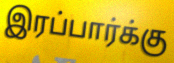
இரப்பார்க்கு